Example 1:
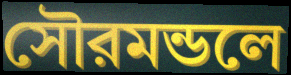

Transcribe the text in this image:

সৌরমন্ডলে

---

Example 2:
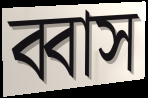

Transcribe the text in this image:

ব্বাস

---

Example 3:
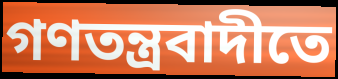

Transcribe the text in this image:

গণতন্ত্রবাদীতে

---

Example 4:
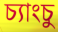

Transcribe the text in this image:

চ্যাংচু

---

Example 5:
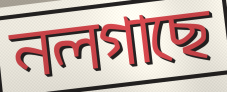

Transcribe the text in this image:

নলগাছে